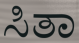
ಸಿತಾ